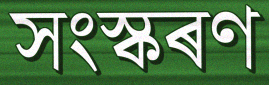
সংস্কৰণ